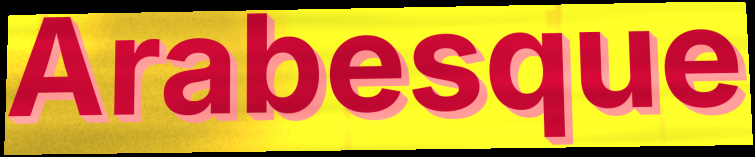
Arabesque